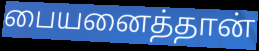
பையனைத்தான்